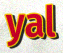
yal